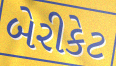
બેરીકેટ